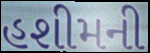
હશીમની